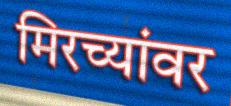
मिरच्यांवर